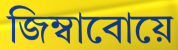
জিম্বাবোয়ে